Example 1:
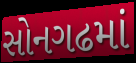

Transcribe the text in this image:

સોનગઢમાં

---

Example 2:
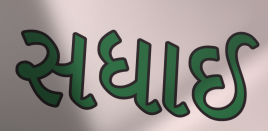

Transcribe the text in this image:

સધાઈ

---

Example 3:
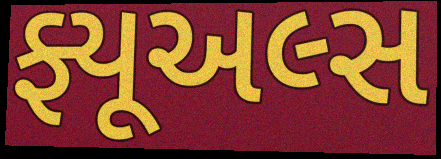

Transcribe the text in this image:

ફ્યૂઅલ્સ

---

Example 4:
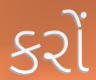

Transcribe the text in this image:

કરોં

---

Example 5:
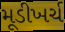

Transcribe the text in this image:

મૂડીખર્ચ